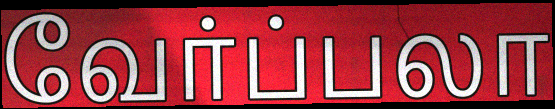
வேர்ப்பலா